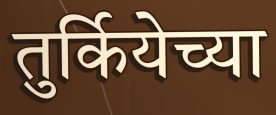
तुर्कियेच्या